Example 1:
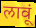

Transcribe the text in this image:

लावूं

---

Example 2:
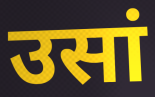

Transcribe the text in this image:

उसां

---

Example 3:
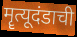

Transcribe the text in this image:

मॄत्यूदंडाची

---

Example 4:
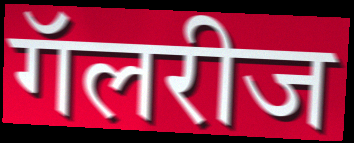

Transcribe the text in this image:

गॅलरीज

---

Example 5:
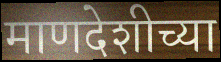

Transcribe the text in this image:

माणदेशीच्या